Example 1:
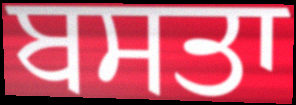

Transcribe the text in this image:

ਬਸਤਾ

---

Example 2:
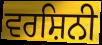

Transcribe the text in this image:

ਵਰਸ਼ਿਨੀ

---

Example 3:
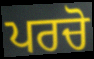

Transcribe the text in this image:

ਪਰਚੋ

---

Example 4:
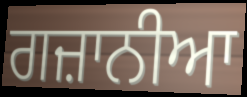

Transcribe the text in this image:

ਗਜ਼ਾਨੀਆ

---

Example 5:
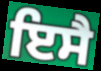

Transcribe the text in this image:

ਇਸੈ